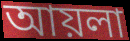
আয়লা